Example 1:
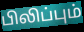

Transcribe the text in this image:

பிலிப்பும்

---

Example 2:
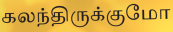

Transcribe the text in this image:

கலந்திருக்குமோ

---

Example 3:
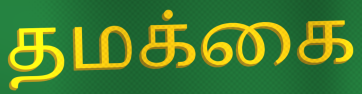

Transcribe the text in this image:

தமக்கை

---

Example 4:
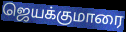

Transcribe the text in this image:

ஜெயக்குமாரை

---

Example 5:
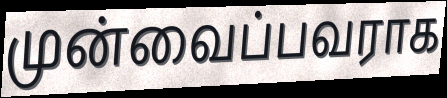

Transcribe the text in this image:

முன்வைப்பவராக